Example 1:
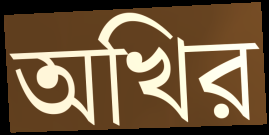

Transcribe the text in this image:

অখির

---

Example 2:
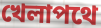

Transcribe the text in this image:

খেলাপথে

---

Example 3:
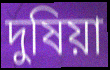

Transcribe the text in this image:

দুষিয়া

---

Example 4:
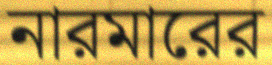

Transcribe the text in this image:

নারমারের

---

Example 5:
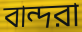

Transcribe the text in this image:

বান্দরা